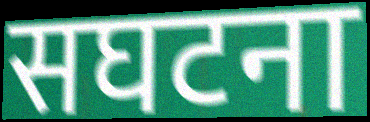
सघटना